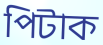
পিটাক